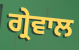
ਗ੍ਰੇਵਾਲ